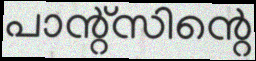
പാന്റ്സിന്റെ